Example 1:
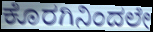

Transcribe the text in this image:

ಕೊರಗಿನಿಂದಲೇ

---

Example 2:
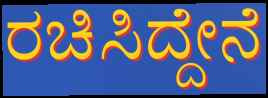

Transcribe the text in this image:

ರಚಿಸಿದ್ದೇನೆ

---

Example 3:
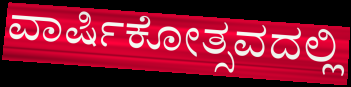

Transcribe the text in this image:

ವಾರ್ಷಿಕೋತ್ಸವದಲ್ಲಿ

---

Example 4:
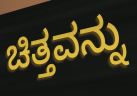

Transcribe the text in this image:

ಚಿತ್ತವನ್ನು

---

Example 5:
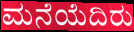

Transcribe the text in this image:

ಮನೆಯೆದಿರು